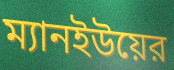
ম্যানইউয়ের